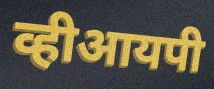
व्हीआयपी